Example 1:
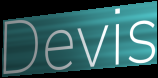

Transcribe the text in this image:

Devis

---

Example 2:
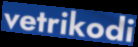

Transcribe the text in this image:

vetrikodi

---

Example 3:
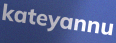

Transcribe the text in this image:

kateyannu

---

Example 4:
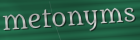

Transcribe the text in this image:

metonyms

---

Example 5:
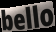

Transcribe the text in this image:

bello